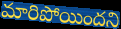
మారిపోయిందని